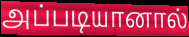
அப்படியானால்